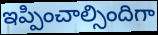
ఇప్పించాల్సిందిగా